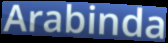
Arabinda